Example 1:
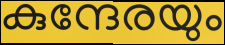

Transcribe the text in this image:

കുന്ദേരയും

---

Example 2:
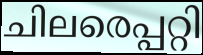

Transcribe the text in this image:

ചിലരെപ്പറ്റി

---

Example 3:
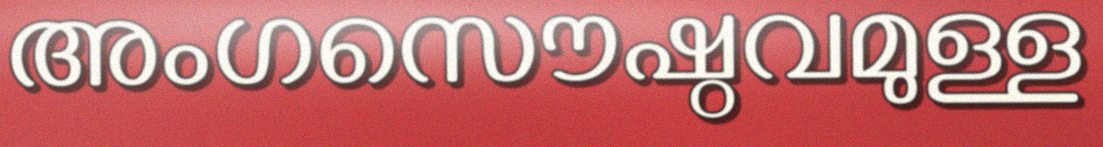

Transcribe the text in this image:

അംഗസൌഷ്ഠവമുള്ള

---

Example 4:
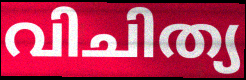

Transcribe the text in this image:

വിചിത്യ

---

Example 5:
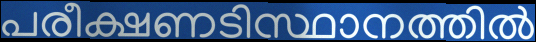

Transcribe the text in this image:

പരീക്ഷണടിസ്ഥാനത്തിൽ